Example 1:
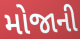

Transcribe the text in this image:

મોજાની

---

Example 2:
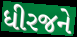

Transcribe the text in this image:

ધીરજને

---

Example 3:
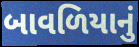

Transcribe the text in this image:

બાવળિયાનું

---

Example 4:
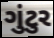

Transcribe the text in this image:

ગુંટુર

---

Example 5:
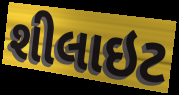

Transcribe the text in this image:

શીલાઇટ